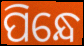
ପିନ୍ଧେ